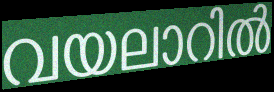
വയലാറിൽ